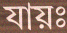
যায়ঃ